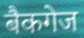
बैकगेज